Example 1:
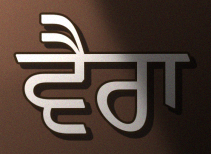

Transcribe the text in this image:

ਵੈਰਾ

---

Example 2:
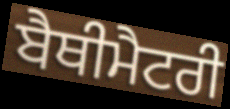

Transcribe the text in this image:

ਬੈਥੀਮੈਟਰੀ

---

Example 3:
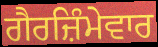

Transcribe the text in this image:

ਗੈਰਜ਼ਿੰਮੇਵਾਰ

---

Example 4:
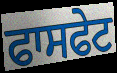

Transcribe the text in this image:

ਫਾਸਫੇਟ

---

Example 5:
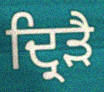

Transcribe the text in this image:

ਦ੍ਰਿੜੈ